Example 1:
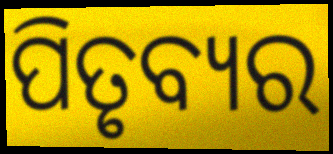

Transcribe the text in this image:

ପିତୃବ୍ୟର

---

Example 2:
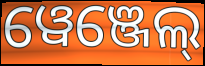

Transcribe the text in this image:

ୱେଞ୍ଜେଲ୍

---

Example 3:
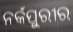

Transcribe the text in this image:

ନର୍କପୁରୀର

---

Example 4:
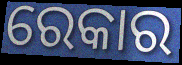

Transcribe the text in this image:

ରେକାର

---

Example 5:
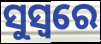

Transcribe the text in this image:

ସୁସ୍ୱରେ